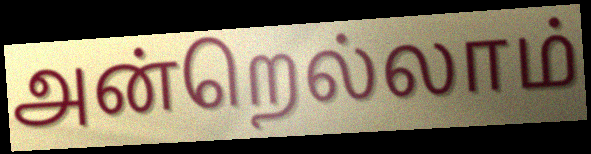
அன்றெல்லாம்